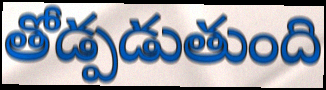
తోడ్పడుతుంది